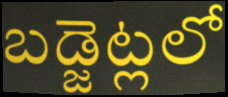
బడ్జెట్లలో